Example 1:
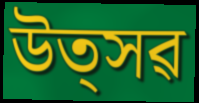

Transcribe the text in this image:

উত্সৱ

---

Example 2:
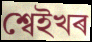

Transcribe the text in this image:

শ্বেইখৰ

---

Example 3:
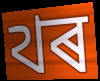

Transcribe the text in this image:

থৰ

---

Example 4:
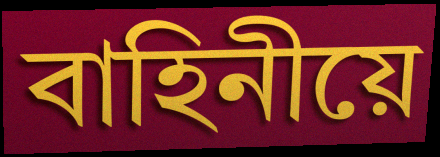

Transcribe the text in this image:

বাহিনীয়ে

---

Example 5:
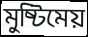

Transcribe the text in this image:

মুষ্টিমেয়